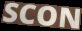
SCON